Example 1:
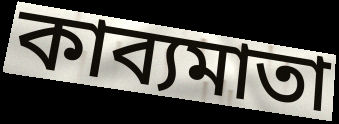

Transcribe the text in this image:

কাব্যমাতা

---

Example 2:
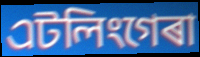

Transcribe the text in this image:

এটলিংগেৰা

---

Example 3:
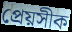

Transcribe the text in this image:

প্ৰেয়সীক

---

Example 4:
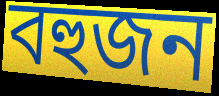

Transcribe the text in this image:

বহুজন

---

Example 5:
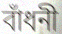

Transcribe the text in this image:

বাঁধনী